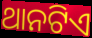
ଥାନଟିଏ